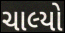
ચાલ્યો